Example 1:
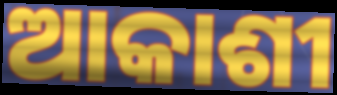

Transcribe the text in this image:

ଆକାଶୀ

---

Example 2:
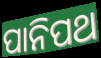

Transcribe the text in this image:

ପାନିପଥ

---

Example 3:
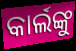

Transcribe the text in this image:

କାର୍ଲଙ୍କୁ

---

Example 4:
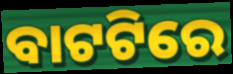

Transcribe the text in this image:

ବାଟଟିରେ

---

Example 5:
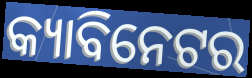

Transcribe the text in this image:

କ୍ୟାବିନେଟର